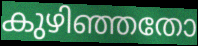
കുഴിഞ്ഞതോ